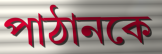
পাঠানকে